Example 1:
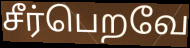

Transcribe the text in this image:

சீர்பெறவே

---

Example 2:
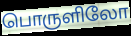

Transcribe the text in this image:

பொருளிலோ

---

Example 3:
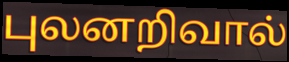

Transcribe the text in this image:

புலனறிவால்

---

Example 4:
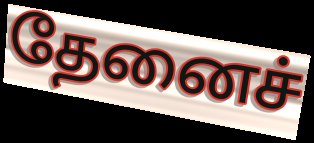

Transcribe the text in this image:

தேனைச்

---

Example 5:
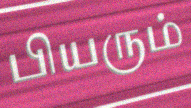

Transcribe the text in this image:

பியரும்